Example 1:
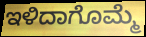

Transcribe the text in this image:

ಇಳಿದಾಗೊಮ್ಮೆ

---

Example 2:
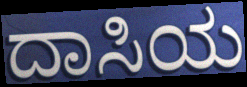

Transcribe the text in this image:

ದಾಸಿಯ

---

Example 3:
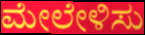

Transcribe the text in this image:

ಮೇಲೇಳಿಸು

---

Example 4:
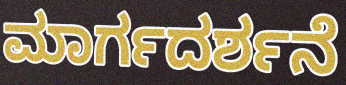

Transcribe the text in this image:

ಮಾರ್ಗದರ್ಶನೆ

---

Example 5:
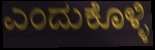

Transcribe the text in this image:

ಎಂದುಕೊಳ್ಳಿ